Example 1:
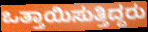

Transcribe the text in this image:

ಒತ್ತಾಯಿಸುತ್ತಿದ್ದರು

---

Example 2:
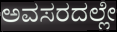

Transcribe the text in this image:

ಅವಸರದಲ್ಲೇ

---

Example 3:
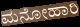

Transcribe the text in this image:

ಮನೋಹಾರಿ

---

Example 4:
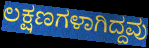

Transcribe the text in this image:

ಲಕ್ಷಣಗಳಾಗಿದ್ದವು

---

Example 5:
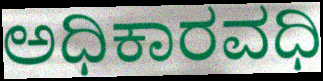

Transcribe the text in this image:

ಅಧಿಕಾರವಧಿ